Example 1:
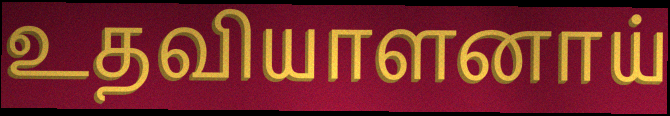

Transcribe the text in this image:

உதவியாளனாய்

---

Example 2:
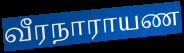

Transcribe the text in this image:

வீரநாராயண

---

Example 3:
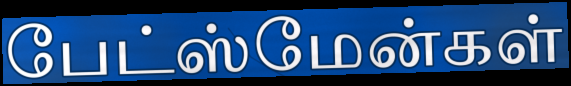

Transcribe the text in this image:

பேட்ஸ்மேன்கள்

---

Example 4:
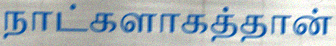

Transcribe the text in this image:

நாட்களாகத்தான்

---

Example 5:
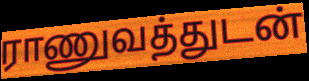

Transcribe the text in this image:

ராணுவத்துடன்